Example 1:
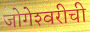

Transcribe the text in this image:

जोगेश्वरीची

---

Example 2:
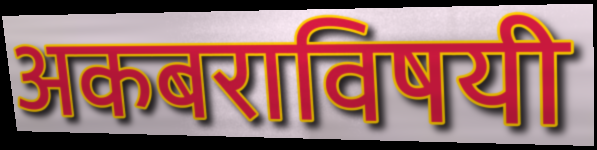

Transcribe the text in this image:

अकबराविषयी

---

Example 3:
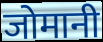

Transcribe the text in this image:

जोमानी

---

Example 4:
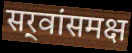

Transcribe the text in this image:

सर्वांसमक्ष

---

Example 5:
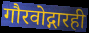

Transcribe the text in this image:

गौरवोद्गारही